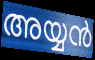
അയ്യൻ